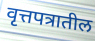
वृत्तपत्रातील